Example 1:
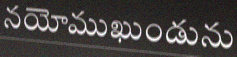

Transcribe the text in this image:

నయోముఖుండును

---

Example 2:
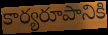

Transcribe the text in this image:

కార్యరూపానికి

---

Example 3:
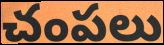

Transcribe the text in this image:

చంపలు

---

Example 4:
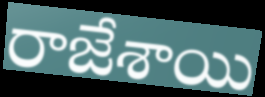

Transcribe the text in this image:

రాజేశాయి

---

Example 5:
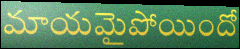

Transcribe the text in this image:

మాయమైపోయిందో